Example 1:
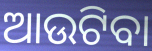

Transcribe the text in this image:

ଆଉଟିବା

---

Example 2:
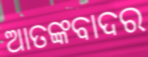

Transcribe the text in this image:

ଆତଙ୍କବାଦର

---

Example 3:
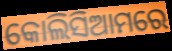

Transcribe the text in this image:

କୋଲିସିଆମରେ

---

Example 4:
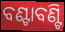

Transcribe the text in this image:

ବଣ୍ଟାବଣ୍ଟି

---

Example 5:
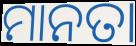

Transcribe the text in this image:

ମାନତା